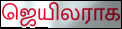
ஜெயிலராக